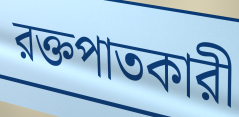
রক্তপাতকারী